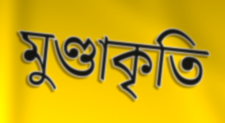
মুণ্ডাকৃতি